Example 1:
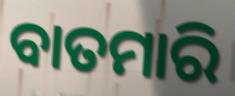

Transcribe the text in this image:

ବାତମାରି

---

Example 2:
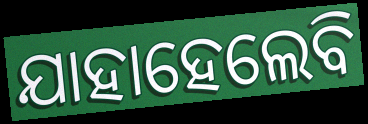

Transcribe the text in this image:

ଯାହାହେଲେବି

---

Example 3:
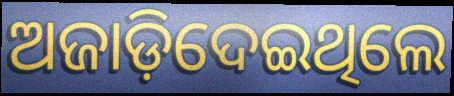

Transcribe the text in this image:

ଅଜାଡ଼ିଦେଇଥିଲେ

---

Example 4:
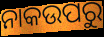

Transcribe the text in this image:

ନାକଉପରୁ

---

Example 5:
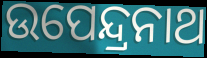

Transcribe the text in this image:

ଉପେନ୍ଦ୍ରନାଥ